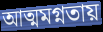
আত্মমগ্নতায়